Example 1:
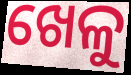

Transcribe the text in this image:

ଖେଳୁ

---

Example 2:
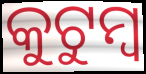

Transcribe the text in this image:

କୁଟୁମ୍ୱ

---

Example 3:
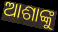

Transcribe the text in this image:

ଆଶାଙ୍କୁ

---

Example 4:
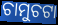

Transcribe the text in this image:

ଚାମୁଚଟା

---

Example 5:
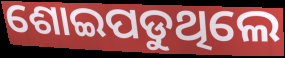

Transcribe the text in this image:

ଶୋଇପଡୁଥିଲେ